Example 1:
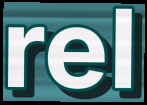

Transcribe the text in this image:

rel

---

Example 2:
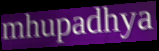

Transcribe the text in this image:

mhupadhya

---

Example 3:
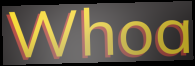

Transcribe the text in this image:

Whoa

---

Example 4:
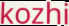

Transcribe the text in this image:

kozhi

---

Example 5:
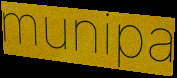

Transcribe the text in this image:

munipa